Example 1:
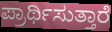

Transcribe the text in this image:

ಪ್ರಾರ್ಥಿಸುತ್ತಾರೆ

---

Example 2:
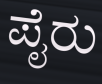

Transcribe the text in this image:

ಪೈರು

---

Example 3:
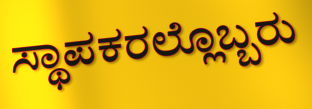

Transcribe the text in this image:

ಸ್ಥಾಪಕರಲ್ಲೊಬ್ಬರು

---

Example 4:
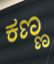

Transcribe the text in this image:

ಕಣ್ಣ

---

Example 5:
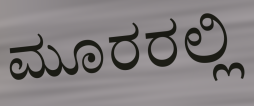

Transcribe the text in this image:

ಮೂರರಲ್ಲಿ